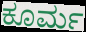
ಕೂರ್ಮ